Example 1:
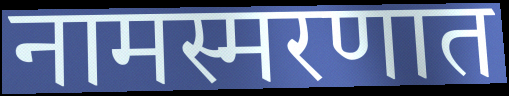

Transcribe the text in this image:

नामस्मरणात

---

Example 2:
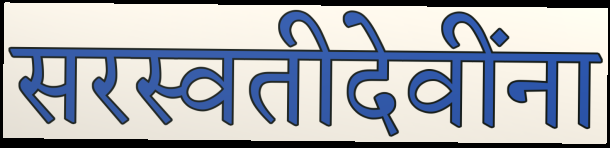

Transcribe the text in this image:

सरस्वतीदेवींना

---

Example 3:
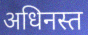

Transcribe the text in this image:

अधिनस्त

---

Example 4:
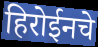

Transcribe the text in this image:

हिरोईनचे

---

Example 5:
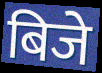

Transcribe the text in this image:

बिजे